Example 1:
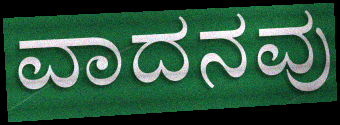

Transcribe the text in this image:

ವಾದನವು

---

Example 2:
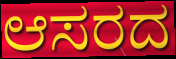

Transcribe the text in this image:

ಆಸರದ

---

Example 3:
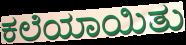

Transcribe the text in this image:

ಕಲೆಯಾಯಿತು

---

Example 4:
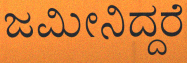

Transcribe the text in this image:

ಜಮೀನಿದ್ದರೆ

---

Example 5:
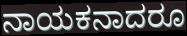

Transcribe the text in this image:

ನಾಯಕನಾದರೂ